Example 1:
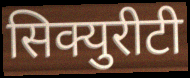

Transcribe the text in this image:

सिक्युरीटी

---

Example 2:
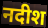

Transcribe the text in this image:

नदीश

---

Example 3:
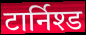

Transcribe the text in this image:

टार्निश्ड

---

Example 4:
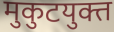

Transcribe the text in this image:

मुकुटयुक्त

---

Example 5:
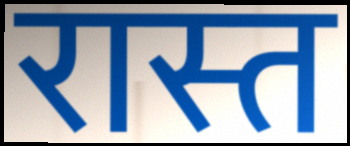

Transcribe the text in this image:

रास्त